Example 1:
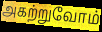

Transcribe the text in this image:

அகற்றுவோம்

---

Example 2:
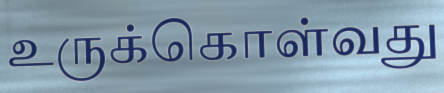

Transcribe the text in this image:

உருக்கொள்வது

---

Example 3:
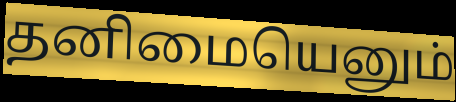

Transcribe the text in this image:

தனிமையெனும்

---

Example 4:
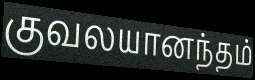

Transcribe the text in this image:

குவலயானந்தம்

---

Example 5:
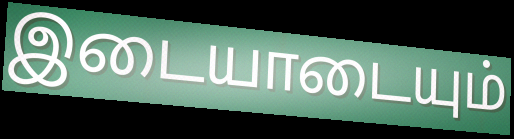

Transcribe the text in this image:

இடையாடையும்